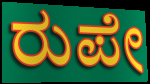
ರುಪೇ